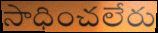
సాధించలేరు